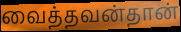
வைத்தவன்தான்